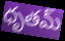
ధృతమ్